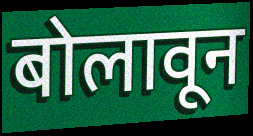
बोलावून